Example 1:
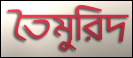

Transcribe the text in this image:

তৈমুরিদ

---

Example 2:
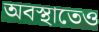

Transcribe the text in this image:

অবস্থাতেও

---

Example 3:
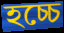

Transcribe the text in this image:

হচ্চে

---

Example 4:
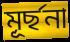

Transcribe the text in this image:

মূর্ছনা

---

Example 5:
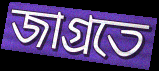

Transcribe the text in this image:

জাগ্রতে